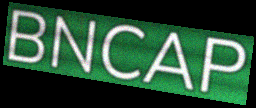
BNCAP